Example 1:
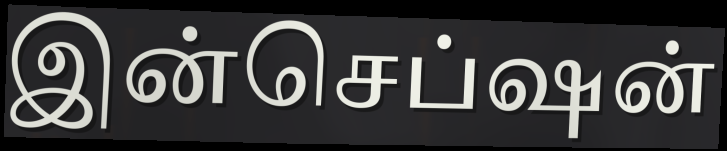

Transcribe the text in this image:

இன்செப்ஷன்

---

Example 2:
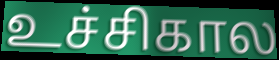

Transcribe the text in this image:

உச்சிகால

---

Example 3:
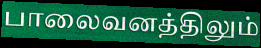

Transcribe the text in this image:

பாலைவனத்திலும்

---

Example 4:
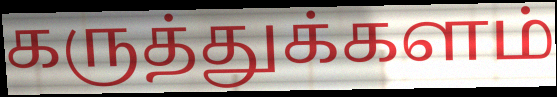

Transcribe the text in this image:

கருத்துக்களம்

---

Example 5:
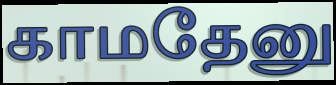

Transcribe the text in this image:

காமதேனு